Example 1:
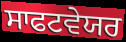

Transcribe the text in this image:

ਸਾਫਟਵੇਯਰ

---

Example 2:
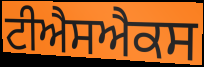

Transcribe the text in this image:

ਟੀਐਸਐਕਸ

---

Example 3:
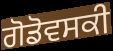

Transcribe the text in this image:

ਗੋਡੋਵਸਕੀ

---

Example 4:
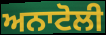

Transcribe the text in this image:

ਅਨਾਟੋਲੀ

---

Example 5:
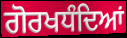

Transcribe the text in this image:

ਗੋਰਖਧੰਦਿਆਂ